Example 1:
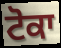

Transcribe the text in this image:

ਟੋਕਾ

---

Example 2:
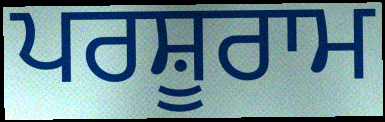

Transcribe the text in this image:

ਪਰਸ਼ੂਰਾਮ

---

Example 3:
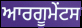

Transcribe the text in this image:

ਆਰਗੂਮੇੰਟਸ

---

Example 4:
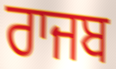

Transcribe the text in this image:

ਰਾਜਬ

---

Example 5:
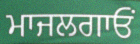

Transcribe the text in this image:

ਮਾਜਲਗਾਓਂ